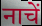
नाचें